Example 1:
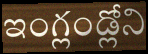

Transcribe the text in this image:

ఇంగ్లండ్లోని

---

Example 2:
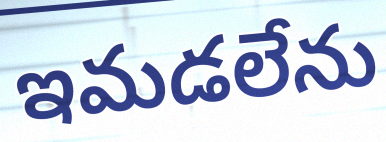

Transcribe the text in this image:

ఇమడలేను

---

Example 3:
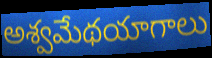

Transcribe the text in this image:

అశ్వమేథయాగాలు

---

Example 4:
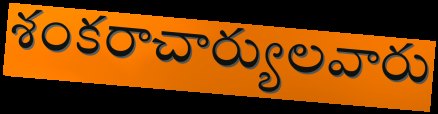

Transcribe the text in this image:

శంకరాచార్యులవారు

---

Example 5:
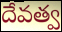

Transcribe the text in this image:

దేవత్వ